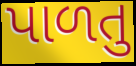
પાળતુ